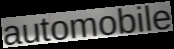
automobile